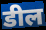
डील